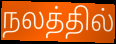
நலத்தில்